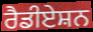
ਰੈਡੀਏਸ਼ਨ